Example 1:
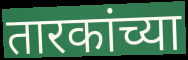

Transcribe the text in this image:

तारकांच्या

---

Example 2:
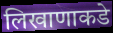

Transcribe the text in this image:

लिखाणाकडे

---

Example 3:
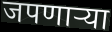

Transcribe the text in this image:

जपणाऱ्या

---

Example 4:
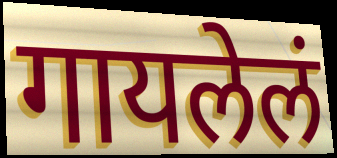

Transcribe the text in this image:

गायलेलं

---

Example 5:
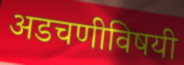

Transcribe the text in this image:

अडचणीविषयी